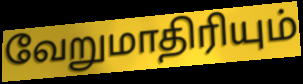
வேறுமாதிரியும்